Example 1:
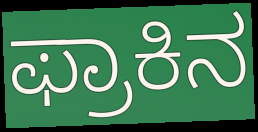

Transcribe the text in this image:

ಫ್ರಾಕಿನ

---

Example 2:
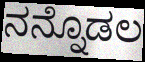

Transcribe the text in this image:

ನನ್ನೊಡಲ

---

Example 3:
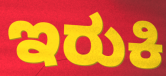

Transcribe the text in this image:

ಇರುಕಿ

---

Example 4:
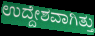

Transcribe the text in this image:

ಉದ್ದೇಶವಾಗಿತ್ತು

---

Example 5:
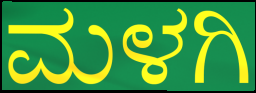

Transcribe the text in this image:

ಮಳಗಿ